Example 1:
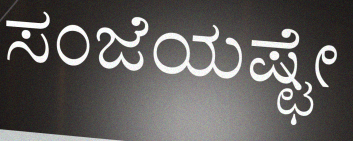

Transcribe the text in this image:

ಸಂಜೆಯಷ್ಟೇ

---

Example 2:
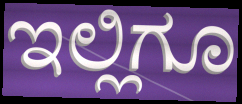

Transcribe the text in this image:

ಇಲ್ಲಿಗೂ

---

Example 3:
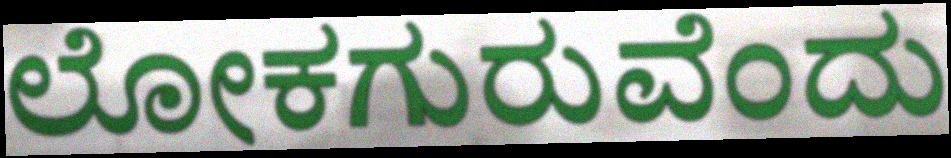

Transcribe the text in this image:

ಲೋಕಗುರುವೆಂದು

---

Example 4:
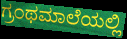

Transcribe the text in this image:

ಗ್ರಂಥಮಾಲೆಯಲ್ಲಿ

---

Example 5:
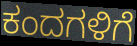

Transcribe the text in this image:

ಕಂದಗಳಿಗೆ